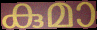
കുമാ